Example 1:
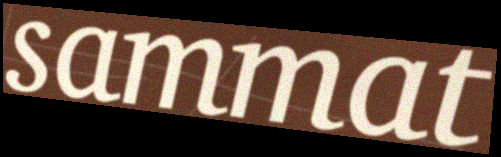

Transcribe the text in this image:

sammat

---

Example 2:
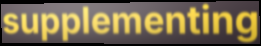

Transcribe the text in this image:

supplementing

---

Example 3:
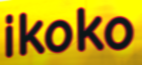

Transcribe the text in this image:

ikoko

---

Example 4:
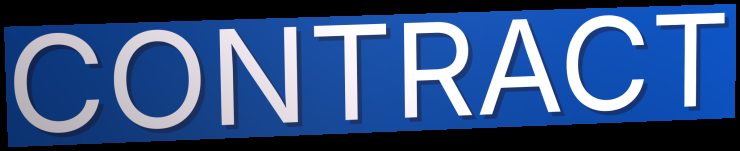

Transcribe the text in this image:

CONTRACT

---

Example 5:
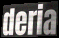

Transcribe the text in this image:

deria